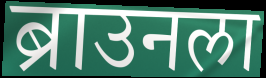
ब्राउनला